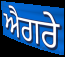
ਐਗਰੇ